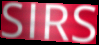
SIRS